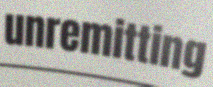
unremitting